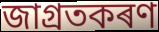
জাগ্ৰতকৰণ